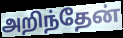
அறிந்தேன்